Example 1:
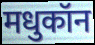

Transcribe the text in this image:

मधुकॉन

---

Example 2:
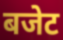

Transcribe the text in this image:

बजेट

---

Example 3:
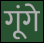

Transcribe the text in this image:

गूंगे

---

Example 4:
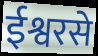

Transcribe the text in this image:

ईश्वरसे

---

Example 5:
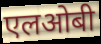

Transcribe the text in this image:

एलओबी